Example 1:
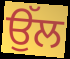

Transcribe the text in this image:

ਉੱਲ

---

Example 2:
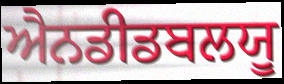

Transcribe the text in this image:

ਐਨਡੀਡਬਲਯੂ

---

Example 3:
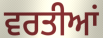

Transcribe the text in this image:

ਵਰਤੀਆਂ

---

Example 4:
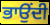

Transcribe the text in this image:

ਭਾਉਂਦੀ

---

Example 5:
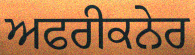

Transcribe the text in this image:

ਅਫਰੀਕਨੇਰ